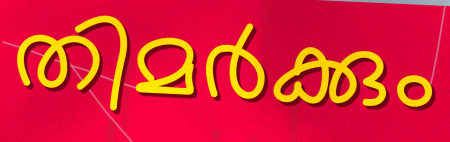
തിമർക്കും